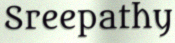
Sreepathy